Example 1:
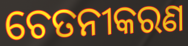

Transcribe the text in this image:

ଚେତନୀକରଣ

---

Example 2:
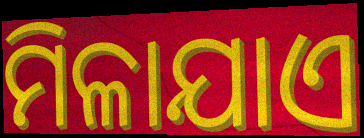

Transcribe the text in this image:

ମିଳାଯାଏ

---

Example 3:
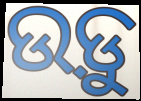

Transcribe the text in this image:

ଉଡ଼ୁ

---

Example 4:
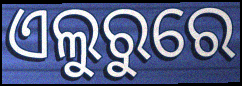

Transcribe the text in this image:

ଏଲୁରୁରେ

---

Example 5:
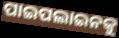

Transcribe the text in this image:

ପାଇପଲାଇନକୁ